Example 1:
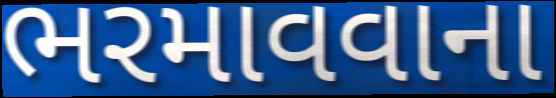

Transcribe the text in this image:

ભરમાવવાના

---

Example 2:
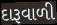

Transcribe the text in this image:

દારૂવાળી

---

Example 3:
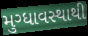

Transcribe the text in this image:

મુગ્ધાવસ્થાથી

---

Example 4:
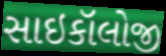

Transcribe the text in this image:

સાઇકૉલોજી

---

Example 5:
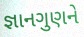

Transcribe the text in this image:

જ્ઞાનગુણને